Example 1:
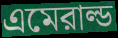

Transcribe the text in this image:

এমেরাল্ড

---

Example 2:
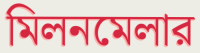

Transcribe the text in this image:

মিলনমেলার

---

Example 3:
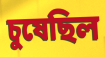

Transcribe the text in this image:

চুষেছিল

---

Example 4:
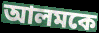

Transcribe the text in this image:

আলমকে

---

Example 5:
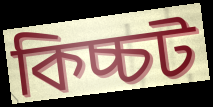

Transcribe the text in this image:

কিচ্চট